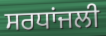
ਸਰਧਾਂਜਲੀ